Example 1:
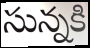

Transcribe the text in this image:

సున్నకి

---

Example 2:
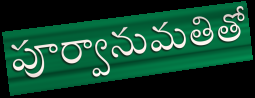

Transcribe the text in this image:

పూర్వానుమతితో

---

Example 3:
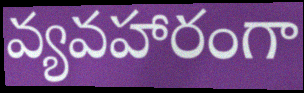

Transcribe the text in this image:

వ్యవహారంగా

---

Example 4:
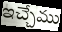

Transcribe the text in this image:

ఇచ్చేము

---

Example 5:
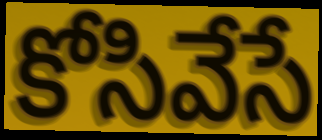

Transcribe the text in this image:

కోసివేసే